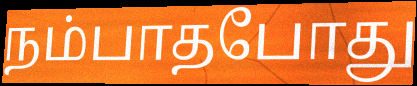
நம்பாதபோது